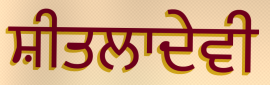
ਸ਼ੀਤਲਾਦੇਵੀ